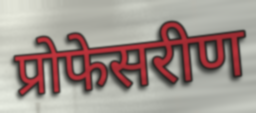
प्रोफेसरीण